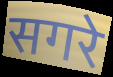
सगरे